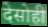
देसोही